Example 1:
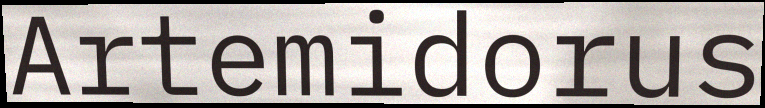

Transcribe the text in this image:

Artemidorus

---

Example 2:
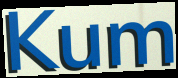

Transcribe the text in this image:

Kum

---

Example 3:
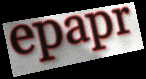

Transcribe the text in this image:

epapr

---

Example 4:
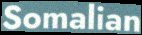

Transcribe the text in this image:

Somalian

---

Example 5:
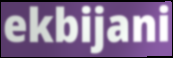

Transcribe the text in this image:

ekbijani